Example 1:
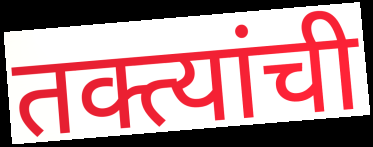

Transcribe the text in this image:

तक्त्यांची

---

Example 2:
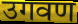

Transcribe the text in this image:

उगवण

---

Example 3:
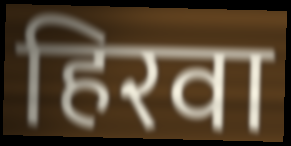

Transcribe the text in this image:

हिरवा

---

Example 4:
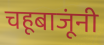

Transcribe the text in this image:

चहूबाजूंनी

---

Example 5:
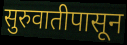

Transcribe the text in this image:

सुरुवातीपासून